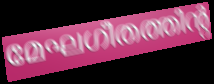
മേഘഗീതത്തിന്റ